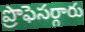
ప్రొఫెసర్గారు